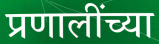
प्रणालींच्या